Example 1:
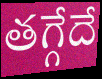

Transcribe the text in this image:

తగ్గేదే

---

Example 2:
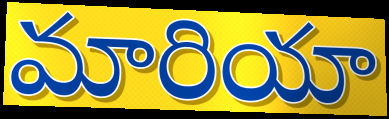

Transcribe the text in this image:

మారియా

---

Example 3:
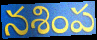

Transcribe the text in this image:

నశింప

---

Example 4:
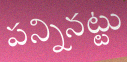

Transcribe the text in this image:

పన్నినట్టు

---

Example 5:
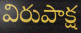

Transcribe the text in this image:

విరుపాక్ష